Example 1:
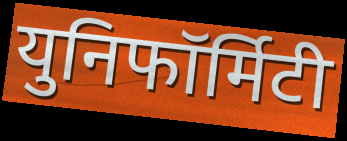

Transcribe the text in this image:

युनिफॉर्मिटी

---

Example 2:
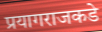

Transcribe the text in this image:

प्रयागराजकडे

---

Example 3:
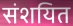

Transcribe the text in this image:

संशयित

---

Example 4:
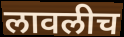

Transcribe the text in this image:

लावलीच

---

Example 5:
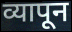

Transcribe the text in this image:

व्यापून